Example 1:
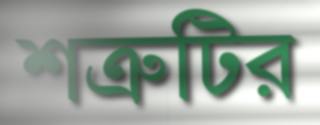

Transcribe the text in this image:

শত্রুটির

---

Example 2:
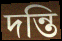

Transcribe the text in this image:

দন্তি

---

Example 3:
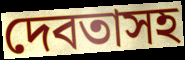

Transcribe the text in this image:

দেবতাসহ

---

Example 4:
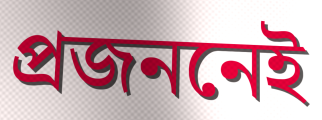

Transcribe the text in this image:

প্রজননেই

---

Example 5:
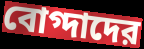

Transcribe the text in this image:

বোগ্দাদের